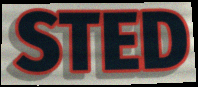
STED